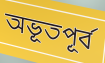
অভূতপূর্ব